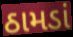
ઠામડાં